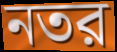
নতর